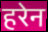
हरेन